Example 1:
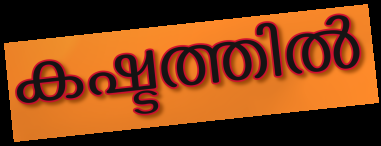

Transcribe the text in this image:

കഷ്ടത്തിൽ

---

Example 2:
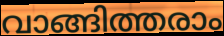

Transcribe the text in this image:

വാങ്ങിത്തരാം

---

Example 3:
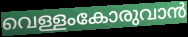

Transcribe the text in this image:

വെള്ളംകോരുവാൻ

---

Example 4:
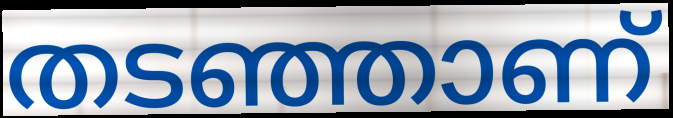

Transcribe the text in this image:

തടഞ്ഞാണ്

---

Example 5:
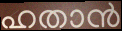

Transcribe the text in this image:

ഹതാൻ